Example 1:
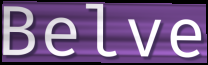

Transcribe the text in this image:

Belve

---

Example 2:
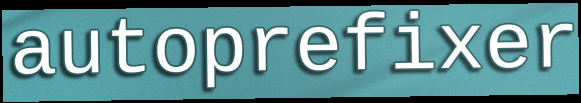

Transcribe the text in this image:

autoprefixer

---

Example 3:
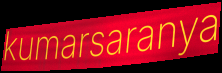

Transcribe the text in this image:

kumarsaranya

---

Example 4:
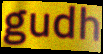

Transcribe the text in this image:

gudh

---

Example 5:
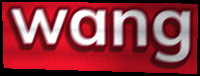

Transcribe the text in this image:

wang